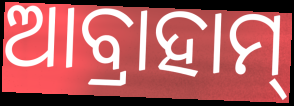
ଆବ୍ରାହାମ୍